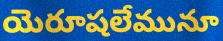
యెరూషలేమునూ